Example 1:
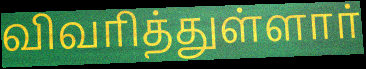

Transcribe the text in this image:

விவரித்துள்ளார்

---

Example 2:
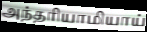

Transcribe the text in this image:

அந்தரியாமியாய்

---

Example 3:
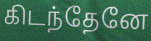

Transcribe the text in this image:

கிடந்தேனே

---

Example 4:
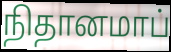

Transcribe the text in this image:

நிதானமாப்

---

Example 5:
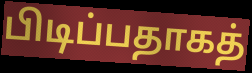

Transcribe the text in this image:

பிடிப்பதாகத்